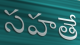
సహతే